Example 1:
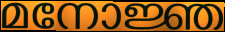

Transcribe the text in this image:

മനോജ്ഞ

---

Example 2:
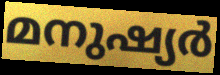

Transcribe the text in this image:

മനുഷ്യർ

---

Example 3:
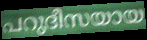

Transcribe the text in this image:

പറുദീസയായ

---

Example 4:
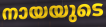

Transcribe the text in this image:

നായയുടെ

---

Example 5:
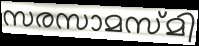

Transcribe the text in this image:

സരസാമസ്മി